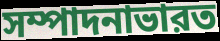
সম্পাদনাভারত